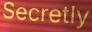
Secretly